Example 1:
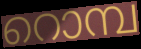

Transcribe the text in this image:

റൊമ്പ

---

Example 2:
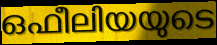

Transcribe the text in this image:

ഒഫീലിയയുടെ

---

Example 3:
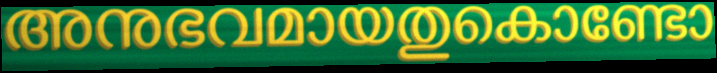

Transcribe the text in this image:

അനുഭവമായതുകൊണ്ടോ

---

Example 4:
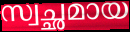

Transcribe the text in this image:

സ്വച്ഛമായ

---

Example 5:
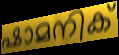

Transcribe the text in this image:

ഷാമനിക്